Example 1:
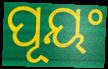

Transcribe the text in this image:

ପୂୟଂ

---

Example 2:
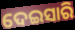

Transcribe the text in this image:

ଦେଇସାରି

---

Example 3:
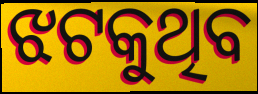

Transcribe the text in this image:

ଝଟକୁଥିବ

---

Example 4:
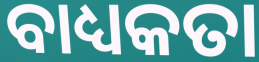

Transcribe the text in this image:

ବାଧ୍ୟକତା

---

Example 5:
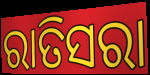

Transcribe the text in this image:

ରାତିସରା